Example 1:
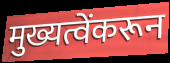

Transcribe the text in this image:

मुख्यत्वेंकरून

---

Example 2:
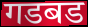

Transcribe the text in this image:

गडबड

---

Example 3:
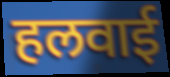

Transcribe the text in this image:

हलवाई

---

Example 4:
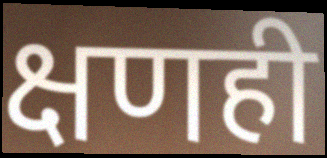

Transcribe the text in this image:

क्षणही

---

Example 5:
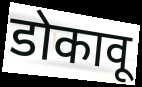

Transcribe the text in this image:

डोकावू